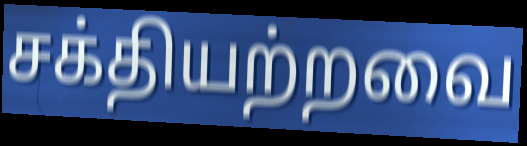
சக்தியற்றவை